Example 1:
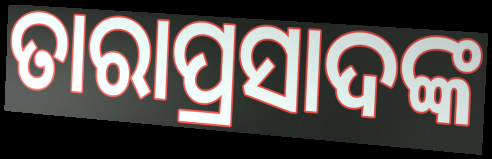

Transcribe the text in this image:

ତାରାପ୍ରସାଦଙ୍କ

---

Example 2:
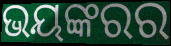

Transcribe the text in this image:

ଭୟଙ୍କରର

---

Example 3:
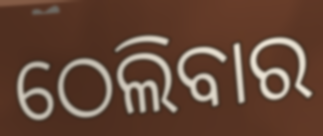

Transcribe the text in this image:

ଠେଲିବାର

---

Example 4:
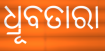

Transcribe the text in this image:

ଧ୍ରୂବତାରା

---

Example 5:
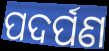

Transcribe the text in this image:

ପଦର୍ପଣ